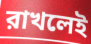
রাখলেই